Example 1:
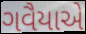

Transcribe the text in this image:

ગવૈયાએ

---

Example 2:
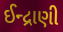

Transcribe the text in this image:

ઈન્દ્રાણી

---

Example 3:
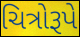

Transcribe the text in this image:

ચિત્રોરૂપે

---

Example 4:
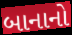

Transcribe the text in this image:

બાનાનો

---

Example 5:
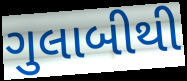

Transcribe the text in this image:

ગુલાબીથી